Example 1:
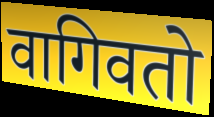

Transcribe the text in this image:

वागिवतो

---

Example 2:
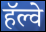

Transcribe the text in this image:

हॅल्वे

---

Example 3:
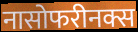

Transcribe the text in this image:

नासोफरीनक्स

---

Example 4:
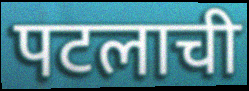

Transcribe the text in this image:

पटलाची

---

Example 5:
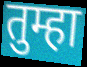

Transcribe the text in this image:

तुम्हा